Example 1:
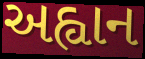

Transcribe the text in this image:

અહ્વાન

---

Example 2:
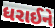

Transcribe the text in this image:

ધરાઈને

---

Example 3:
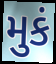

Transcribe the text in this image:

મુકં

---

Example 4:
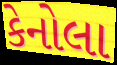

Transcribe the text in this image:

કેનોલા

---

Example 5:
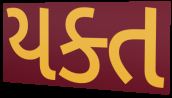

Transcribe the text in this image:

યક્ત